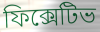
ফিক্সেটিভ